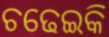
ଚଢେଇକି